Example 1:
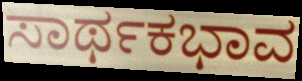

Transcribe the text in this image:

ಸಾರ್ಥಕಭಾವ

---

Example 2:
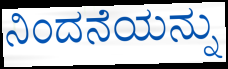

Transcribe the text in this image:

ನಿಂದನೆಯನ್ನು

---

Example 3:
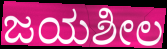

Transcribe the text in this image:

ಜಯಶೀಲ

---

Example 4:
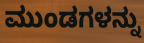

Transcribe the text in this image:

ಮುಂಡಗಳನ್ನು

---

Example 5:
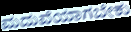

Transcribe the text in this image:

ಮದುವೆಯಾಗಬೇಕು